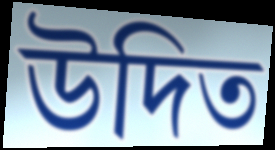
উদিত